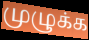
முழுக்க